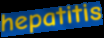
hepatitis